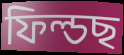
ফিল্ডছ